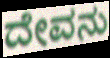
ದೇವನು